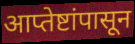
आप्तेष्टांपासून